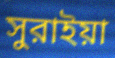
সুরাইয়া